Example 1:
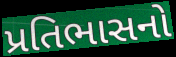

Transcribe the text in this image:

પ્રતિભાસનો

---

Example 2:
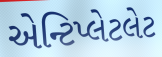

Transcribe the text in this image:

એન્ટિપ્લેટલેટ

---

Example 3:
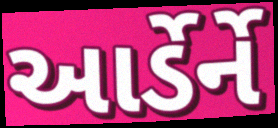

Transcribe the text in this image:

આર્ડેર્ને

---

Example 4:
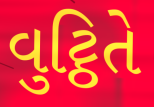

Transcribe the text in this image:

વુટ્ઠિતે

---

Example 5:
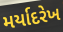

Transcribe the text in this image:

મર્યાદરેખ